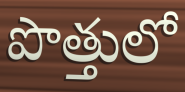
పొత్తులో